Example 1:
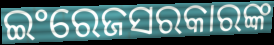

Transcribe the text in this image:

ଇଂରେଜସରକାରଙ୍କ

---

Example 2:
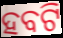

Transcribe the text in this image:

ହବଟି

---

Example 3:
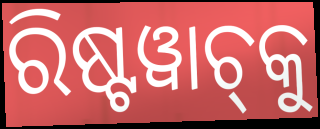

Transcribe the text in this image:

ରିଷ୍ଟୱାଚ୍‌କୁ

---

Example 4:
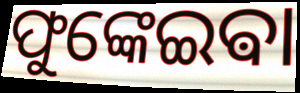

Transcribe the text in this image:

ଫୁଙ୍କେଇଵା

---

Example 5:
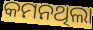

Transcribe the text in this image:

କମନଥିଲା